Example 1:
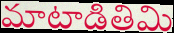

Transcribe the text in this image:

మాటాడితిమి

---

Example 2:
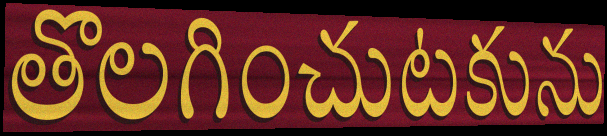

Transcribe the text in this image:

తొలగించుటకును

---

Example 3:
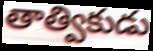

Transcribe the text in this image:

తాత్వికుడు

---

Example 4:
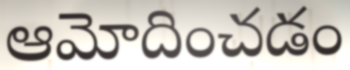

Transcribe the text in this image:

ఆమోదించడం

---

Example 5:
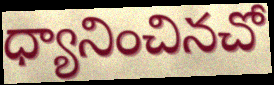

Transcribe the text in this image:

ధ్యానించినచో